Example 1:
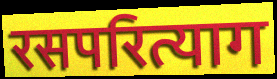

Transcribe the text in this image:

रसपरित्याग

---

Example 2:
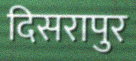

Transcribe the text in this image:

दिसरापुर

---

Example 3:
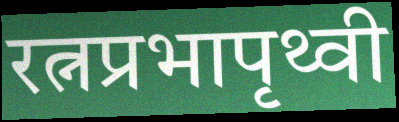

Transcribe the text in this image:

रत्नप्रभापृथ्वी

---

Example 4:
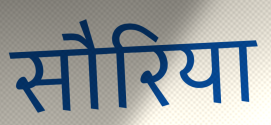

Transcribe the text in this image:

सौरिया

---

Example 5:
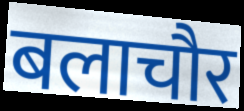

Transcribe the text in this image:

बलाचौर